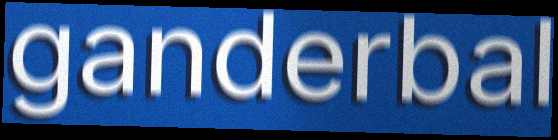
ganderbal